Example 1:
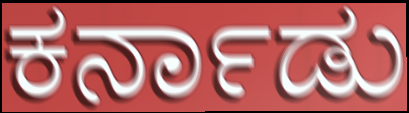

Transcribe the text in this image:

ಕರ್ನಾಡು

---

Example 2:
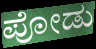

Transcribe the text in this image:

ಪೋಡು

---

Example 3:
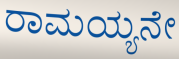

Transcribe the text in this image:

ರಾಮಯ್ಯನೇ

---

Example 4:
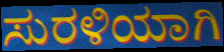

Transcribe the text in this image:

ಸುರಳಿಯಾಗಿ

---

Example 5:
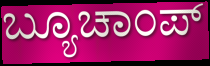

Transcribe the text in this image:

ಬ್ಯೂಚಾಂಪ್